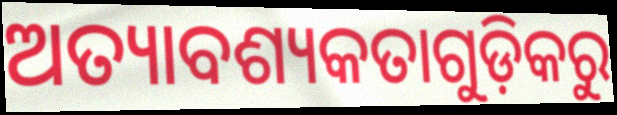
ଅତ୍ୟାବଶ୍ୟକତାଗୁଡ଼ିକରୁ